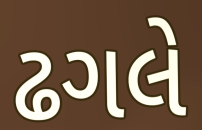
ઢગલે